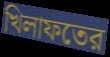
খিলাফতের